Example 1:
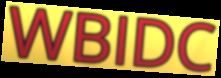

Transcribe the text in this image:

WBIDC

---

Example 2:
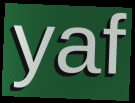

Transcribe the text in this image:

yaf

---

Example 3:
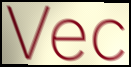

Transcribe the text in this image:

Vec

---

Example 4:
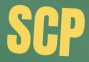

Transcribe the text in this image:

SCP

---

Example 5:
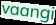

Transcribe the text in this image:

vaangi